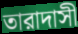
তারাদাসী